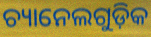
ଚ୍ୟାନେଲଗୁଡ଼ିକ